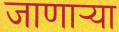
जाणार्‍या